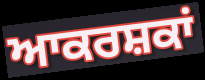
ਆਕਰਸ਼ਕਾਂ